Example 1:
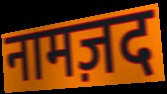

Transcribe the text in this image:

नामज़द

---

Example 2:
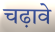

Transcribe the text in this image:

चढ़ावे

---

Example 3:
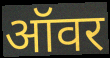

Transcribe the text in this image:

ऑवर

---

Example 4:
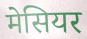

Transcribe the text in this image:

मेसियर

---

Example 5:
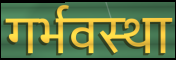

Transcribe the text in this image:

गर्भवस्था